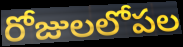
రోజులలోపల